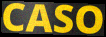
CASO